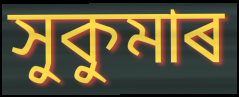
সুকুমাৰ